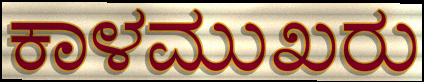
ಕಾಳಮುಖರು